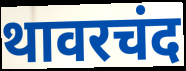
थावरचंद